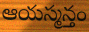
ఆయస్మన్తం